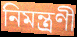
নিমন্ত্ৰণী